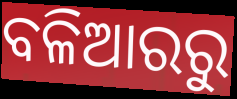
ବଳିଆରରୁ